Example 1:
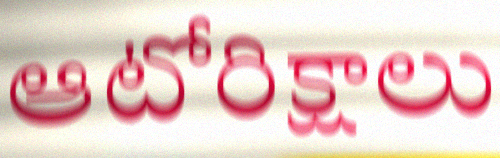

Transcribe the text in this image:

ఆటోరిక్షాలు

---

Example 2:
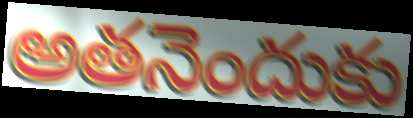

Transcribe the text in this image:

అతనెందుకు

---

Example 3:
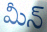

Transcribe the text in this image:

మీన్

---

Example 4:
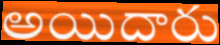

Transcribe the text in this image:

అయిదారు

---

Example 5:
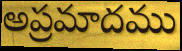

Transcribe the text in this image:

అప్రమాదము